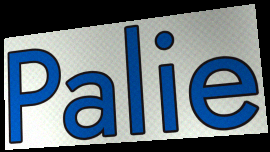
Palie